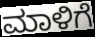
ಮಾಳಿಗೆ